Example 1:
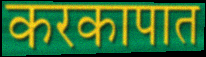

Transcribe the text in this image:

करकापात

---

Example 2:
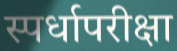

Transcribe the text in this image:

स्पर्धापरीक्षा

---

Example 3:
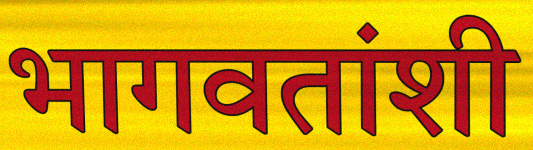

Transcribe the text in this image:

भागवतांशी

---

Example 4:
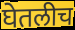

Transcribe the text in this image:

घेतलीच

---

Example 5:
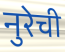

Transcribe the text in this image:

नुरेची